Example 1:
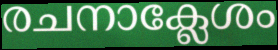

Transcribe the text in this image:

രചനാക്ലേശം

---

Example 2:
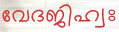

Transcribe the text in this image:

വേദജിഹ്വഃ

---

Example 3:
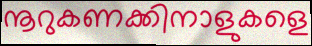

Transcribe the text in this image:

നൂറുകണക്കിനാളുകളെ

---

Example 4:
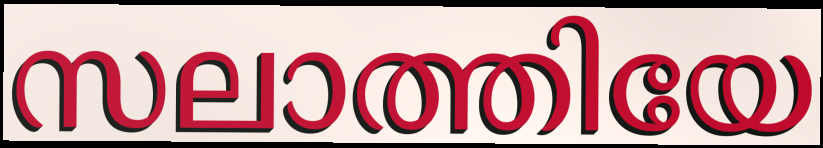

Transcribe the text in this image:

സലാത്തിയേ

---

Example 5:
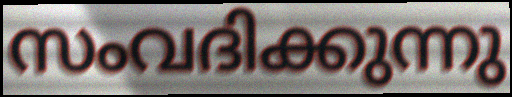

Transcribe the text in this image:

സംവദിക്കുന്നു